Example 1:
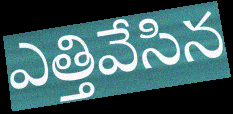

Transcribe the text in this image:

ఎత్తివేసిన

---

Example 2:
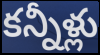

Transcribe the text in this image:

కన్నీళ్లు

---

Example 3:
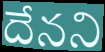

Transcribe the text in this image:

దేనని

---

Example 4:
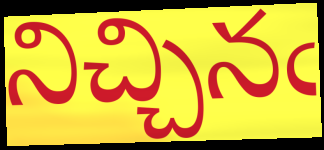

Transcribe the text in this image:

నిచ్చినఁ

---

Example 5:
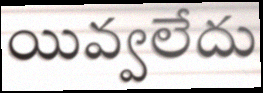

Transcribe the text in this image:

యివ్వలేదు